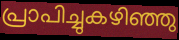
പ്രാപിച്ചുകഴിഞ്ഞു